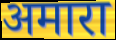
अमारा